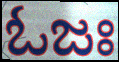
ಓಜಃ